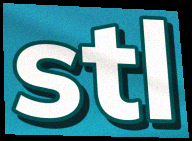
stl